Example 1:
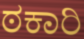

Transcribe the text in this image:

ಠಕಾರಿ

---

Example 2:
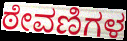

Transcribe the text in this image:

ಠೇವಣಿಗಳ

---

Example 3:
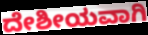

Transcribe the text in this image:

ದೇಶೀಯವಾಗಿ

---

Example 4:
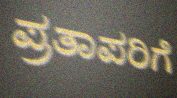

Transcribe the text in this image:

ಪ್ರತಾಪರಿಗೆ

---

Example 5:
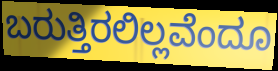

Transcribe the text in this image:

ಬರುತ್ತಿರಲಿಲ್ಲವೆಂದೂ